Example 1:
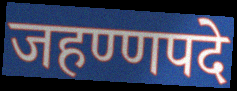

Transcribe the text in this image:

जहण्णपदे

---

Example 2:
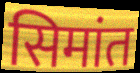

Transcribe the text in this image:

सिमांत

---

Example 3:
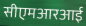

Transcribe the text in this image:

सीएमआरआई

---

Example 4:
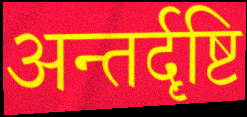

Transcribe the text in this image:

अन्तर्दृष्टि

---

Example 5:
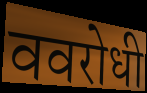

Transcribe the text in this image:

ववरोधी